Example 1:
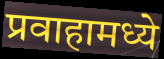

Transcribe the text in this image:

प्रवाहामध्ये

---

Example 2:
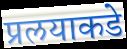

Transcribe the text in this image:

प्रलयाकडे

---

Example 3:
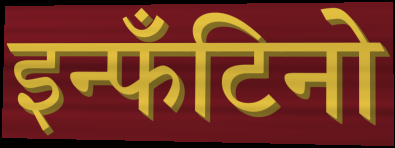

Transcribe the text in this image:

इन्फँटिनो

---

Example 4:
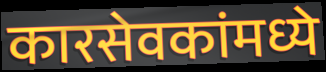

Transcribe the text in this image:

कारसेवकांमध्ये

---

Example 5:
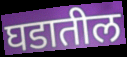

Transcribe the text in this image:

घडातील